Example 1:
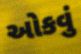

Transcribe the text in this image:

ઓકવું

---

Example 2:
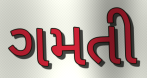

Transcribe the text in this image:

ગમતી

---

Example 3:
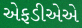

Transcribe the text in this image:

એફડીએએ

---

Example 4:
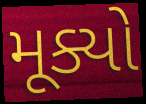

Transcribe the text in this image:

મૂક્યો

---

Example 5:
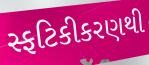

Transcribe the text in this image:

સ્ફટિકીકરણથી